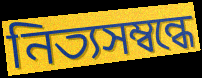
নিত্যসম্বন্ধে